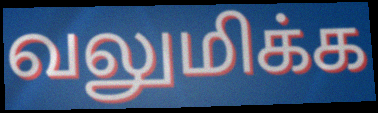
வலுமிக்க